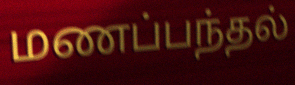
மணப்பந்தல்